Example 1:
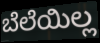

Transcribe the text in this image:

ಬೆಲೆಯಿಲ್ಲ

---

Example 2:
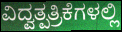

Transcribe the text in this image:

ವಿದ್ವತ್ಪತ್ರಿಕೆಗಳಲ್ಲಿ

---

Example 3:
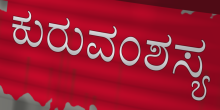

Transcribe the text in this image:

ಕುರುವಂಶಸ್ಯ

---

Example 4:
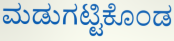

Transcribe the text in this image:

ಮಡುಗಟ್ಟಿಕೊಂಡ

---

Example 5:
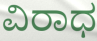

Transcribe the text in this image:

ವಿರಾಧ